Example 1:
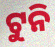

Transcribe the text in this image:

ଟୁନି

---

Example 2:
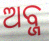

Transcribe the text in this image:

ଅବ୍ଜ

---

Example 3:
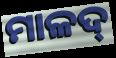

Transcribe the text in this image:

ମାଳଦ୍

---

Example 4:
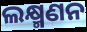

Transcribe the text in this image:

ଲକ୍ଷ୍ମଣନ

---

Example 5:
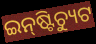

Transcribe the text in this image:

ଇନ୍‍ଷ୍ଟିଚ୍ୟୁଟ